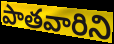
పాతవారిని